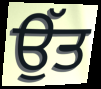
ਉੱਤ